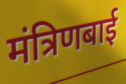
मंत्रिणबाई